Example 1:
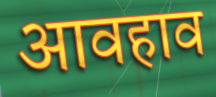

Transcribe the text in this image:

आवहाव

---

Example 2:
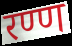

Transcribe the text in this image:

रण्ण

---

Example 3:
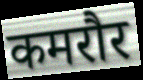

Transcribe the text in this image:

कमरौर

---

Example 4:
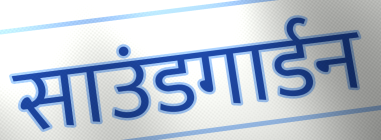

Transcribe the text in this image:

साउंडगार्डन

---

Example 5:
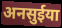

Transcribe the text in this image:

अनसुईया